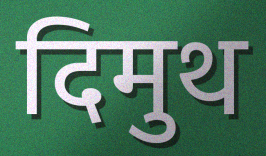
दिमुथ